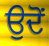
ਉਦੋਂ